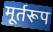
मूर्तरूप